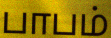
பாபம்